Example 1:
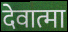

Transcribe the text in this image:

देवात्मा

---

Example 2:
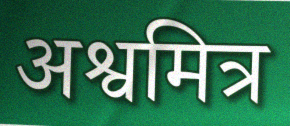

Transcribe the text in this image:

अश्वमित्र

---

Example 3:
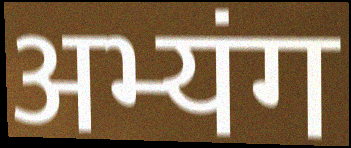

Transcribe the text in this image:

अभ्यंग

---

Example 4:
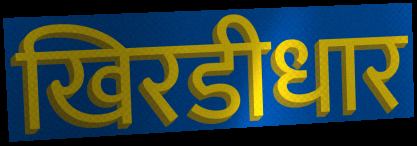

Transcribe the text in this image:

खिरडीधार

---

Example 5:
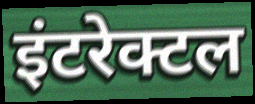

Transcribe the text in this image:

इंटरेक्टल